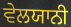
ਵੇਲਯਾਨੀ